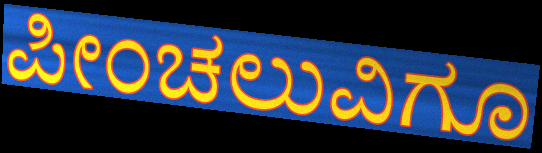
ಪೀಂಚಲುವಿಗೂ